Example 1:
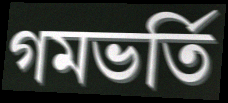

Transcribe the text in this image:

গমভর্তি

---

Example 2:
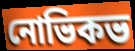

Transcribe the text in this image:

নোভিকভ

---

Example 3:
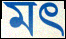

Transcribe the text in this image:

মৎ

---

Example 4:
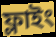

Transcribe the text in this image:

ফ্লাইং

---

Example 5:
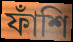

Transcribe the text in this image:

ফাঁশি